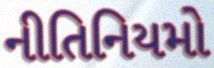
નીતિનિયમો